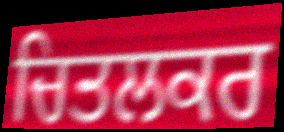
ਚਿਤਲਕਰ